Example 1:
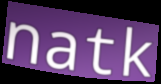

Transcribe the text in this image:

natk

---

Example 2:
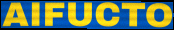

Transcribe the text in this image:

AIFUCTO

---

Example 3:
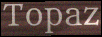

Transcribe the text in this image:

Topaz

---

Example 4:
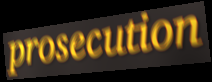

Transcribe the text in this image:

prosecution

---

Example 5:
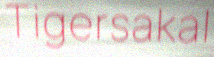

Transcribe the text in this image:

Tigersakal